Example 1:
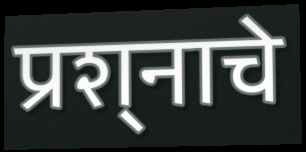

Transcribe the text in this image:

प्रश्नाचे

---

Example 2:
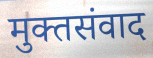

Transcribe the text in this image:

मुक्तसंवाद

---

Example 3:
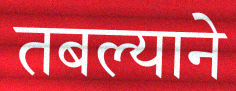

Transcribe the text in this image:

तबल्याने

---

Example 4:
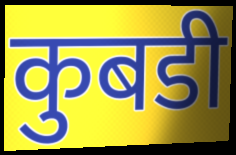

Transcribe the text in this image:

कुबडी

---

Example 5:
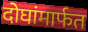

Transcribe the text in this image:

दोघांमार्फत